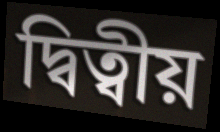
দ্বিত্বীয়